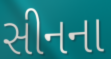
સીનના